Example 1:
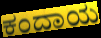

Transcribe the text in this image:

ಕಂದಾಯ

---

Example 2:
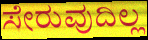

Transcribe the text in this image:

ಸೇರುವುದಿಲ್ಲ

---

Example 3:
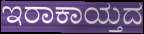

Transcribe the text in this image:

ಇರಾಕಾಯ್ತದ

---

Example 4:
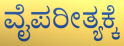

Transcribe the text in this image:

ವೈಪರೀತ್ಯಕ್ಕೆ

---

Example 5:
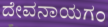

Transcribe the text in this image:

ದೇವನಾಯಗಂ